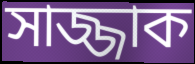
সাজ্জাক